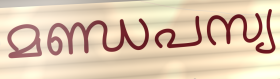
മണ്ഡപസ്യ